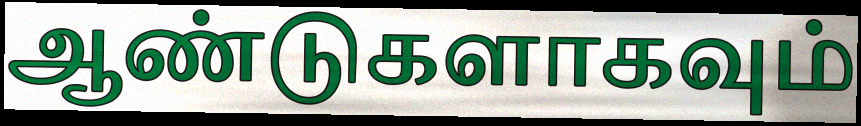
ஆண்டுகளாகவும்